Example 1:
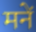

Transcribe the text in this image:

मनें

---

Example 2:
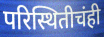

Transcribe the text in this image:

परिस्थितीचंही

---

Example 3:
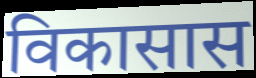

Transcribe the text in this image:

विकासास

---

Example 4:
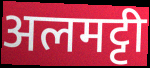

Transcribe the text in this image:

अलमट्टी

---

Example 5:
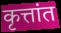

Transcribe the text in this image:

कृत्तांत